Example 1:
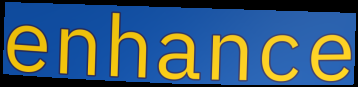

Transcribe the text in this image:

enhance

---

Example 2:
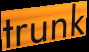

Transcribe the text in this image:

trunk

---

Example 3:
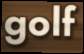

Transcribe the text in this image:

golf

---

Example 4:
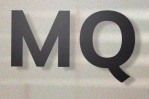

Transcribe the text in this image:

MQ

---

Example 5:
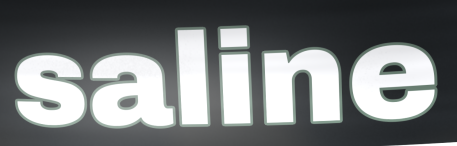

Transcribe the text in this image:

saline